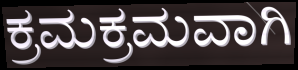
ಕ್ರಮಕ್ರಮವಾಗಿ